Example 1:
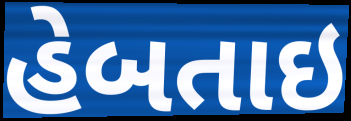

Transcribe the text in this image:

હેબતાઇ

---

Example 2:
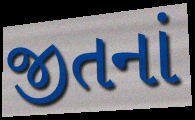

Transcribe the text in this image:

જીતનાં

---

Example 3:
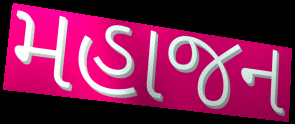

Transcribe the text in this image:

મહાજન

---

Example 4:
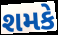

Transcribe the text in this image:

શમકે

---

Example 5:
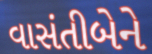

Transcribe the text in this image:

વાસંતીબેને